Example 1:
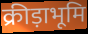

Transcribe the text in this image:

क्रीड़ाभूमि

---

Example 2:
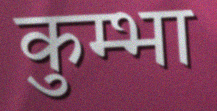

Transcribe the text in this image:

कुम्भा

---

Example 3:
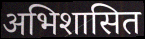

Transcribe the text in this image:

अभिशासित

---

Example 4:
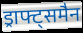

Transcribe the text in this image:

ड्राफ्ट्समैन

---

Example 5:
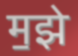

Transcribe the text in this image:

म॒झे